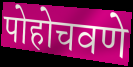
पोहोचवणे